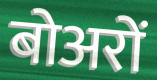
बोअरों